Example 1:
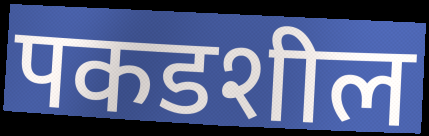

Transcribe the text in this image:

पकडशील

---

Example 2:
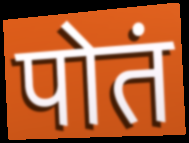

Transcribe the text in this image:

पोतं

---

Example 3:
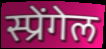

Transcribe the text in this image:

स्प्रेंगेल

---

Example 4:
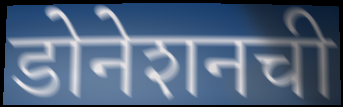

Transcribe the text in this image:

डोनेशनची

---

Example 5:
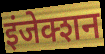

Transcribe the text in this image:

इंजेक्शन